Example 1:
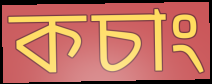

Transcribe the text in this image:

কচাং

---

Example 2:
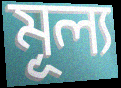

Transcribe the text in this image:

মূল্য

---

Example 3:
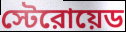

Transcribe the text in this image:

স্টেরোয়েড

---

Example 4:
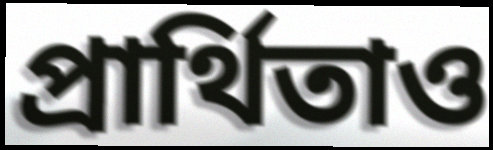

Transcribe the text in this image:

প্রার্থিতাও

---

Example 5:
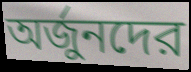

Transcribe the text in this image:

অর্জুনদের